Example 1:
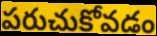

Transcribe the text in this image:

పరుచుకోవడం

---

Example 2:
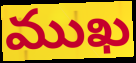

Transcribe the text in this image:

ముఖ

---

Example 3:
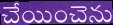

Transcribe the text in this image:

చేయించెను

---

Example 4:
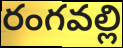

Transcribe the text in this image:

రంగవల్లి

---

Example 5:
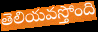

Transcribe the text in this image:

తెలియవస్తోంది